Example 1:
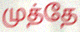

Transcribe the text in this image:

முத்தே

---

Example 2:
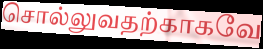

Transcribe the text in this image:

சொல்லுவதற்காகவே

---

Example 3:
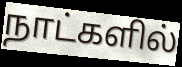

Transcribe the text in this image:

நாட்களில்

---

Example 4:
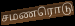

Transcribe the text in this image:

சமணரொடு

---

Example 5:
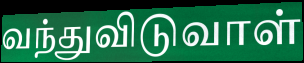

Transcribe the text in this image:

வந்துவிடுவாள்